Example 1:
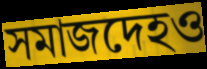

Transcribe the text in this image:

সমাজদেহও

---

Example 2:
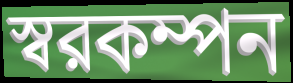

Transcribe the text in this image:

স্বরকম্পন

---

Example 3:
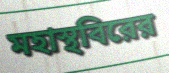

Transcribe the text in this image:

মহাস্থবিরের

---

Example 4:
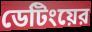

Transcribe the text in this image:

ডেটিংয়ের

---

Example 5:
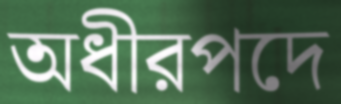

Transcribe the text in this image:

অধীরপদে